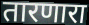
तारणारा